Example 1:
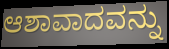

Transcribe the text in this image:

ಆಶಾವಾದವನ್ನು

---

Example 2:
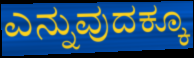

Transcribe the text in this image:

ಎನ್ನುವುದಕ್ಕೂ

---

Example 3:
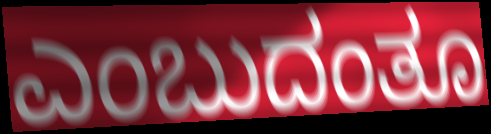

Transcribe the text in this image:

ಎಂಬುದಂತೂ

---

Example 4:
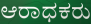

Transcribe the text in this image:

ಆರಾಧಕರು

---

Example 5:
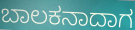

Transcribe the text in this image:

ಬಾಲಕನಾದಾಗ